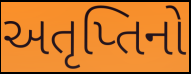
અતૃપ્તિનો